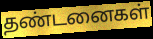
தண்டனைகள்